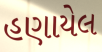
હણાયેલ